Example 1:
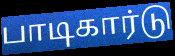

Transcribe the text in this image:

பாடிகார்டு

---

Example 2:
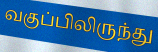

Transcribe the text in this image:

வகுப்பிலிருந்து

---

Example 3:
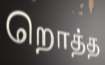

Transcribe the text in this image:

றொத்த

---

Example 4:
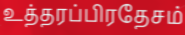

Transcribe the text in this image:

உத்தரப்பிரதேசம்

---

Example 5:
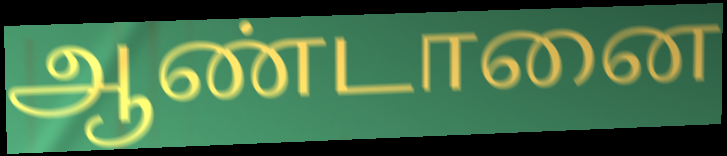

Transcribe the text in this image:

ஆண்டானை